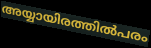
അയ്യായിരത്തിൽപരം